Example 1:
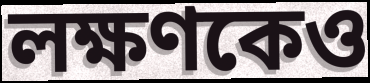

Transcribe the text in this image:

লক্ষণকেও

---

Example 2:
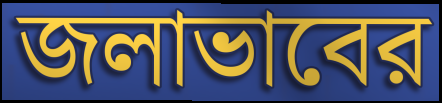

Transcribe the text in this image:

জলাভাবের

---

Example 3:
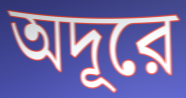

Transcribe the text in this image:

অদূরে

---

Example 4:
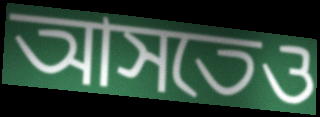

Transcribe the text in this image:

আসতেও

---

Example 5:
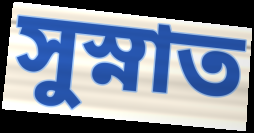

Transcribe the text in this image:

সুস্নাত